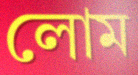
লোম